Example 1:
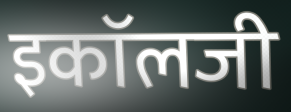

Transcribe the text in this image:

इकॉलजी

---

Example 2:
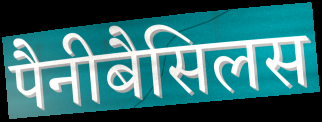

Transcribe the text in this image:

पैनीबैसिलस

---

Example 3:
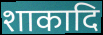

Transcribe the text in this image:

शाकादि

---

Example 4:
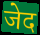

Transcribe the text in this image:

जेद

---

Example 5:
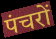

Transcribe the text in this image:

पंचरों